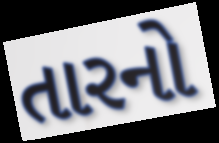
તારનો